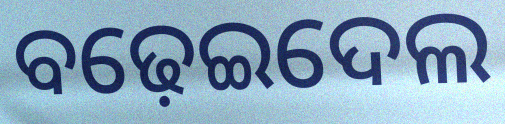
ବଢ଼େଇଦେଲ